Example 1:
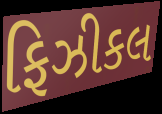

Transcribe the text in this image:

ફિઝીકલ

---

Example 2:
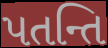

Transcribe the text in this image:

પતન્તિ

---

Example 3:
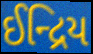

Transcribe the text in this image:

ઈન્દ્રિય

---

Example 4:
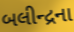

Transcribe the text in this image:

બલીન્દ્રના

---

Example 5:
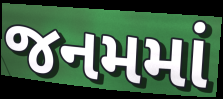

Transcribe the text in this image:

જનમમાં